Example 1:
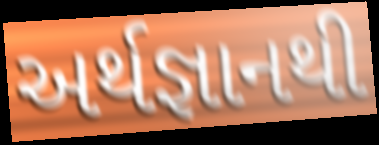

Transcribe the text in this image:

અર્થજ્ઞાનથી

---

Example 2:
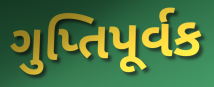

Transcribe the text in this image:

ગુપ્તિપૂર્વક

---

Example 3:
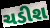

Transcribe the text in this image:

ચડીશ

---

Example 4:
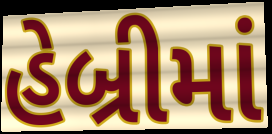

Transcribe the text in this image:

હેબ્રીમાં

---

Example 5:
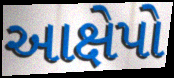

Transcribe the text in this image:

આક્ષેપો